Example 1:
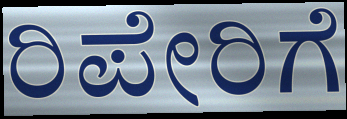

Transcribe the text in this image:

ರಿಪೇರಿಗೆ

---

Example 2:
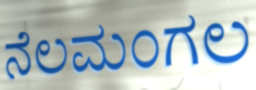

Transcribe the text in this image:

ನೆಲಮಂಗಲ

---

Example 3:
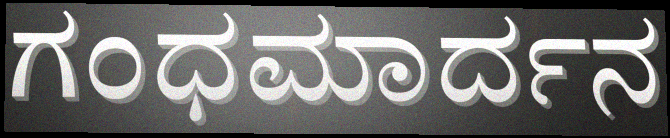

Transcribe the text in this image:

ಗಂಧಮಾರ್ದನ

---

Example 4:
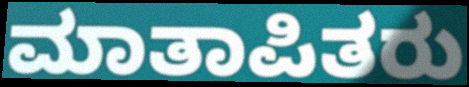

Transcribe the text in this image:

ಮಾತಾಪಿತರು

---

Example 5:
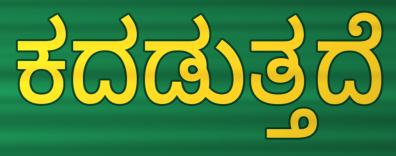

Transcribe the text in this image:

ಕದಡುತ್ತದೆ